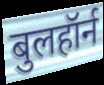
बुलहॉर्न